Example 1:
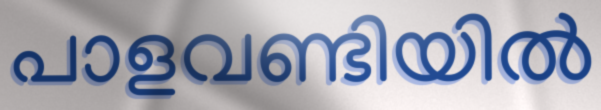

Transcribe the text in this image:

പാളവണ്ടിയിൽ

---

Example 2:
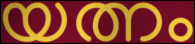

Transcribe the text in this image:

യത്നം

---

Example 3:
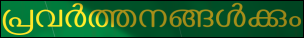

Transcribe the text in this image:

പ്രവർത്തനങ്ങൾക്കും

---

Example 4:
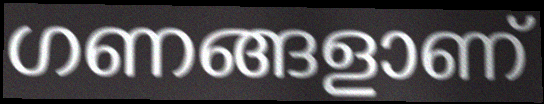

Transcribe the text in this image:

ഗണങ്ങളാണ്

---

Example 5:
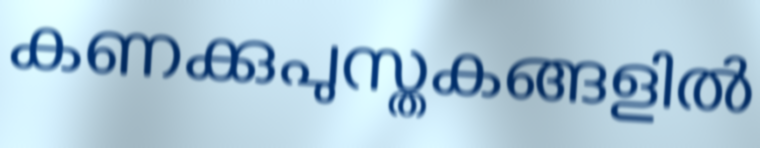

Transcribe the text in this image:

കണക്കുപുസ്തകങ്ങളിൽ